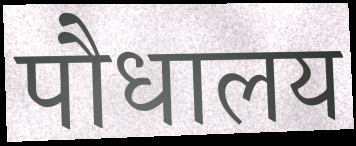
पौधालय